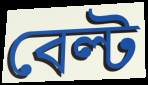
বেল্ট